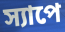
স্যাপে